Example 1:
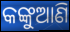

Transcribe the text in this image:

କଙ୍କୁଆଣି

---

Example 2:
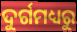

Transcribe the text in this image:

ଦୁର୍ଗମଧ୍ୟରୁ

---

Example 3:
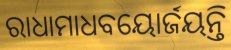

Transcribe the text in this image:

ରାଧାମାଧବୟୋର୍ଜୟନ୍ତି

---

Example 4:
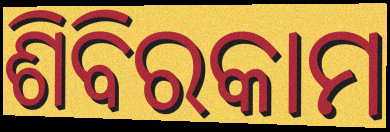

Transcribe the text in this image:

ଶିବିରକାମ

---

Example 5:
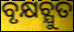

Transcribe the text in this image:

ବୃକ୍ଷଚ୍ଯୁତ